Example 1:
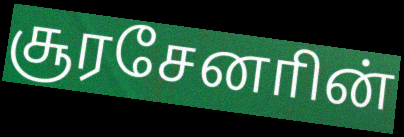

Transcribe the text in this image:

சூரசேனரின்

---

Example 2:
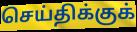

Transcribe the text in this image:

செய்திக்குக்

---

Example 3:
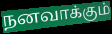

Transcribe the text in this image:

நனவாக்கும்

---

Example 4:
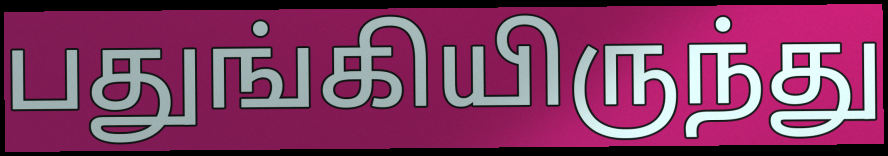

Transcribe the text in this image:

பதுங்கியிருந்து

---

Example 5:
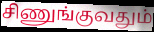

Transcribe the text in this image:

சிணுங்குவதும்